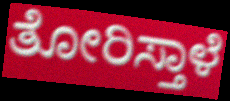
ತೋರಿಸ್ತಾಳೆ